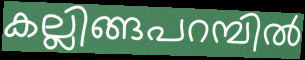
കല്ലിങ്ങപറമ്പിൽ